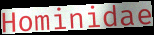
Hominidae